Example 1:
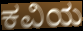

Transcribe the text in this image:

ಕವಿಯ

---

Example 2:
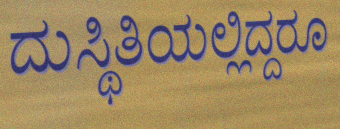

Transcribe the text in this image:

ದುಸ್ಥಿತಿಯಲ್ಲಿದ್ದರೂ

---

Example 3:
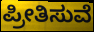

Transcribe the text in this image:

ಪ್ರೀತಿಸುವೆ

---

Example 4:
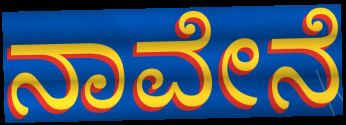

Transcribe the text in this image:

ನಾವೇನೆ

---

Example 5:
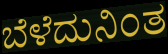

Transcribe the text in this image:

ಬೆಳೆದುನಿಂತ